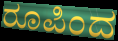
ರೂಪಿಂದ